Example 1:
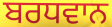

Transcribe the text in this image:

ਬਰਧਵਾਨ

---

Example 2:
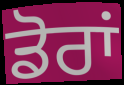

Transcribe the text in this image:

ਡੋਰਾਂ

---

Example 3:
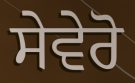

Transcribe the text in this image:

ਸੇਵੇਰੋ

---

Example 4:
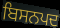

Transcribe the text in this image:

ਬਿਸਨਪਦ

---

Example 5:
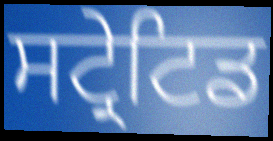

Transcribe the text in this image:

ਸਟ੍ਰੇਟਿਡ